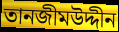
তানজীমউদ্দীন